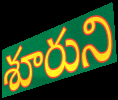
శూరుని